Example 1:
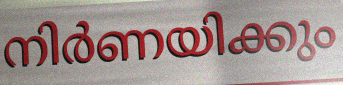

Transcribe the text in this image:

നിർണയിക്കും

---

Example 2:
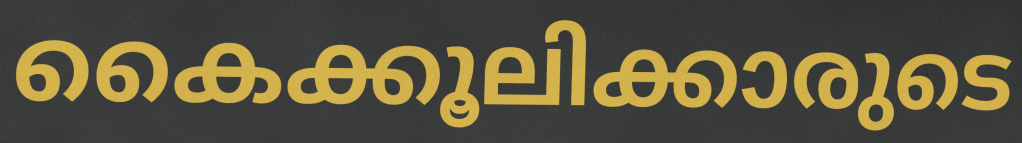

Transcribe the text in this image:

കൈക്കൂലിക്കാരുടെ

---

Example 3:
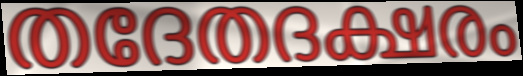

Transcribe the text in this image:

തദേതദക്ഷരം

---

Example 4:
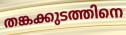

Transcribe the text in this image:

തങ്കക്കുടത്തിനെ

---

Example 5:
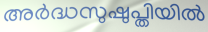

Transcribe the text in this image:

അർദ്ധസുഷുപ്തിയിൽ